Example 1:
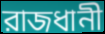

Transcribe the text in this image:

রাজধানী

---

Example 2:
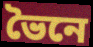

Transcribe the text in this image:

ভৈনে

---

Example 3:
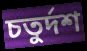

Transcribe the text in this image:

চতুর্দশ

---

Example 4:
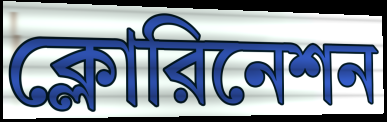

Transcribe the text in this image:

ক্লোরিনেশন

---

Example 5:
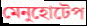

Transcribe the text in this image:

মেনুহোটেপ